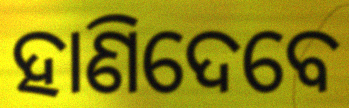
ହାଣିଦେବେ